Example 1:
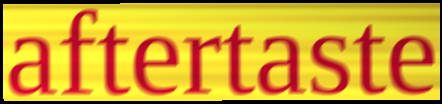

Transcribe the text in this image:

aftertaste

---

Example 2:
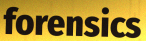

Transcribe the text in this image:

forensics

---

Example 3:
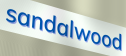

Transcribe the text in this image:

sandalwood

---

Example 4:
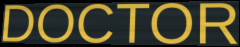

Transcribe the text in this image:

DOCTOR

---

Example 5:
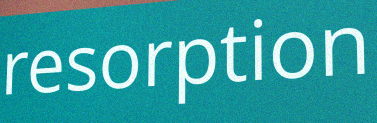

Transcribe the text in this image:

resorption